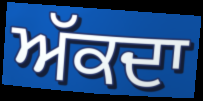
ਅੱਕਦਾ